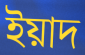
ইয়াদ